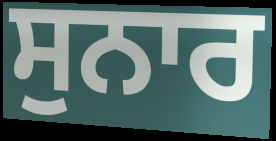
ਸੁਨਾਰ